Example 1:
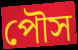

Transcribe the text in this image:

পৌস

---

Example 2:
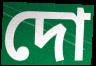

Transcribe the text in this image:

দো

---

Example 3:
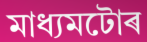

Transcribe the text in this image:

মাধ্যমটোৰ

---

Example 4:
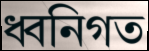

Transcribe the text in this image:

ধ্বনিগত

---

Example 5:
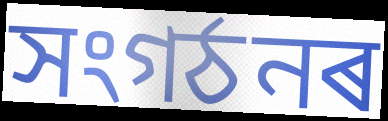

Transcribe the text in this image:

সংগঠনৰ